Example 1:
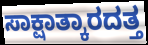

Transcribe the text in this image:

ಸಾಕ್ಷಾತ್ಕಾರದತ್ತ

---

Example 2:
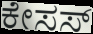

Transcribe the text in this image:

ಕೇಸಸ್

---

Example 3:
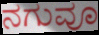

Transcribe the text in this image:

ನಗುವೂ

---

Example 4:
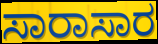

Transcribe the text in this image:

ಸಾರಾಸಾರ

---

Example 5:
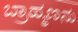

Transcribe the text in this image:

ಬ್ರಾಹ್ಮಣನು